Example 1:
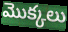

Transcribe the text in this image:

మొక్కలు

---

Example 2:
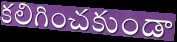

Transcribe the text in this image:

కలిగించకుండా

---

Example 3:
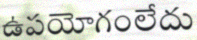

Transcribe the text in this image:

ఉపయోగంలేదు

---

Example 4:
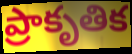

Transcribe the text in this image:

ప్రాకృతిక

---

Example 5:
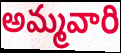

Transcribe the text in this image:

అమ్మవారి